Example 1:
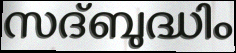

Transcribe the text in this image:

സദ്ബുദ്ധിം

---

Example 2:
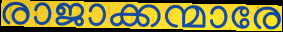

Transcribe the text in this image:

രാജാക്കന്മാരേ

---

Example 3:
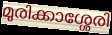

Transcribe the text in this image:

മുരിക്കാശ്ശേരി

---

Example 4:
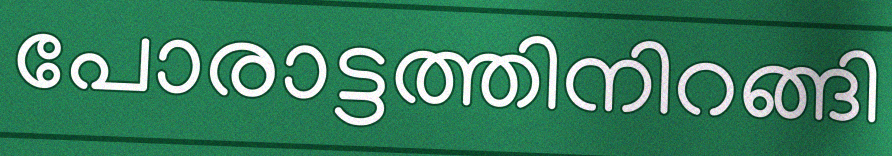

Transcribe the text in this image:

പോരാട്ടത്തിനിറങ്ങി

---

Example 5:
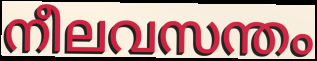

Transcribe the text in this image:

നീലവസന്തം